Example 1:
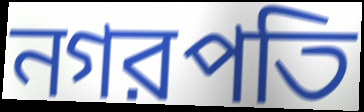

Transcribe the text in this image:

নগরপতি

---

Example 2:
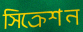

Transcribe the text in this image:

সিক্রেশন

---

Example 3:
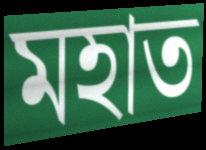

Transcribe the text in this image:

মহাত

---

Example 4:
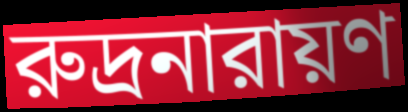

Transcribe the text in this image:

রুদ্রনারায়ণ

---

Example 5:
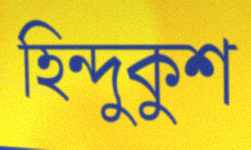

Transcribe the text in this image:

হিন্দুকুশ